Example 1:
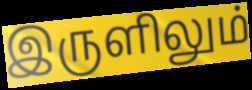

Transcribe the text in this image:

இருளிலும்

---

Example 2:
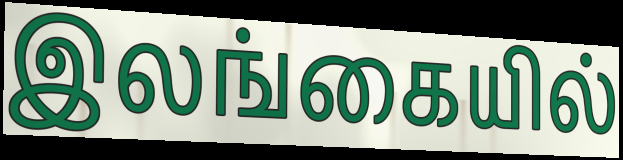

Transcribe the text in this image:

இலங்கையில்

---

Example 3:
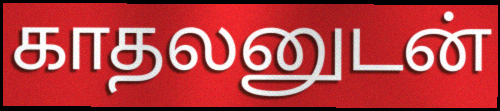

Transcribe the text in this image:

காதலனுடன்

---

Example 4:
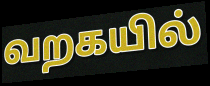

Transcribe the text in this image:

வறகயில்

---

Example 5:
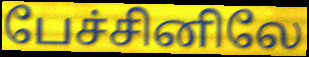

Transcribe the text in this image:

பேச்சினிலே